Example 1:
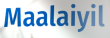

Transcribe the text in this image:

Maalaiyil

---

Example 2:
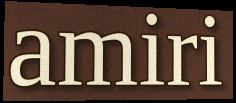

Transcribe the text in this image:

amiri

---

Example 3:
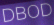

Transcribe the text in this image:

DBOD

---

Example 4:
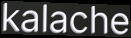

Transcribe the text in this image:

kalache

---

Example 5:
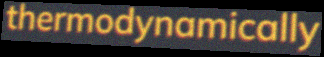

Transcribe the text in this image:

thermodynamically